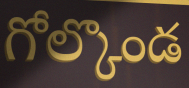
గోల్కొండ